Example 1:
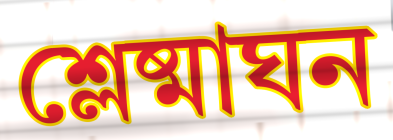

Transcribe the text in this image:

শ্লেষ্মাঘন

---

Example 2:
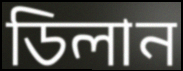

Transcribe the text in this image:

ডিলান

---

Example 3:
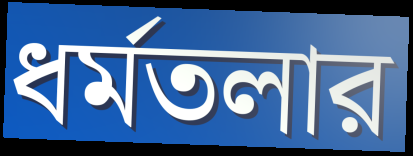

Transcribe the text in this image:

ধর্মতলার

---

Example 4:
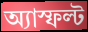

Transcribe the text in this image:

অ্যাস্ফল্ট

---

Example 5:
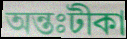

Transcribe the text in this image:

অন্তঃটীকা